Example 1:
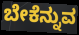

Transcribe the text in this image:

ಬೇಕೆನ್ನುವ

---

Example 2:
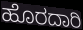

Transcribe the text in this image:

ಹೊರದಾರಿ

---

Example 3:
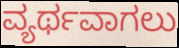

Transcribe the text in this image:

ವ್ಯರ್ಥವಾಗಲು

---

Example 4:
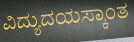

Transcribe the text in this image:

ವಿದ್ಯುದಯಸ್ಕಾಂತ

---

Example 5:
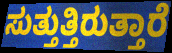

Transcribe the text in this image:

ಸುತ್ತುತ್ತಿರುತ್ತಾರೆ